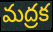
మద్రక